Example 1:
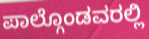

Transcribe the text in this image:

ಪಾಲ್ಗೊಂಡವರಲ್ಲಿ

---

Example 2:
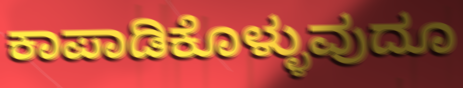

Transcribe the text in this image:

ಕಾಪಾಡಿಕೊಳ್ಳುವುದೂ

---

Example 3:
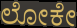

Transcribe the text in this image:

ಲೋಕೇ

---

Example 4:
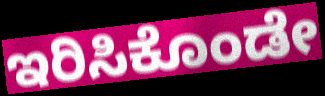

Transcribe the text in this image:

ಇರಿಸಿಕೊಂಡೇ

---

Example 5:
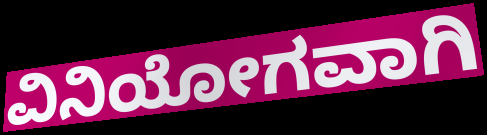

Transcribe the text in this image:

ವಿನಿಯೋಗವಾಗಿ